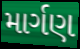
માર્ગણ